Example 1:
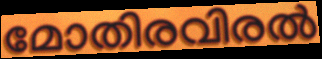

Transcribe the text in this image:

മോതിരവിരൽ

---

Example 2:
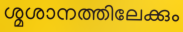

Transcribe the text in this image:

ശ്മശാനത്തിലേക്കും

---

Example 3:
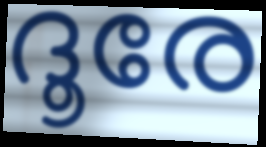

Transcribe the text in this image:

ദൂരേ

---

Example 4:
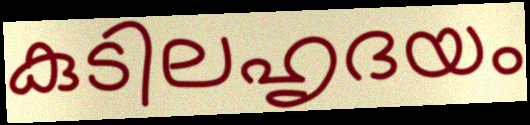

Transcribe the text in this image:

കുടിലഹൃദയം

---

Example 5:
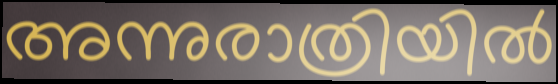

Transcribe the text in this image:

അന്നുരാത്രിയിൽ